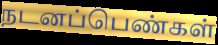
நடனப்பெண்கள்